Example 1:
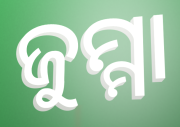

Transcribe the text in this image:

ଜୁମ୍ମା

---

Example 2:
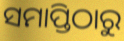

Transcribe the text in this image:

ସମାପ୍ତିଠାରୁ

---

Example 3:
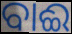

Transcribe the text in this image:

ବାଈ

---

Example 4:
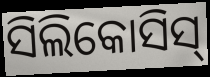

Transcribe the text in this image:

ସିଲିକୋସିସ୍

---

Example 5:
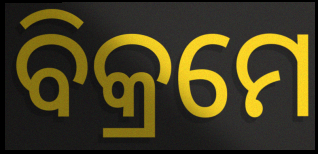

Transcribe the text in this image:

ବିକ୍ରମେ